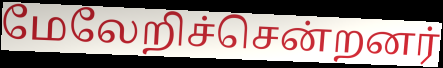
மேலேறிச்சென்றனர்